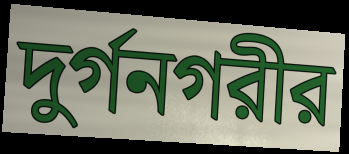
দুর্গনগরীর